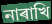
নাৰাখি